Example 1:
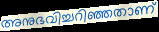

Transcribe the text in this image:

അനുഭവിച്ചറിഞ്ഞതാണ്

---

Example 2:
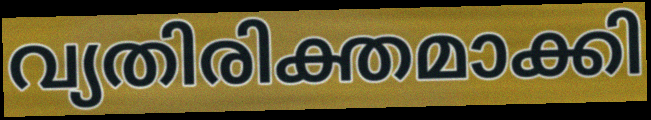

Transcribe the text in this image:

വ്യതിരിക്തമാക്കി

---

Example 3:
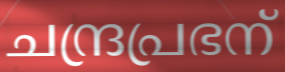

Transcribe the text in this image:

ചന്ദ്രപ്രഭന്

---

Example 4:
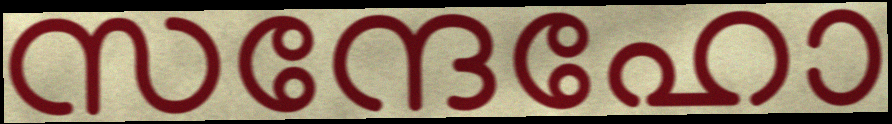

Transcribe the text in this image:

സന്ദേഹോ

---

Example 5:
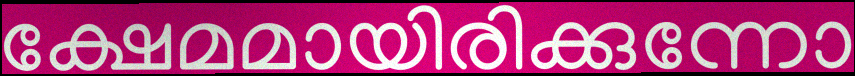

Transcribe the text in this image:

ക്ഷേമമായിരിക്കുന്നോ